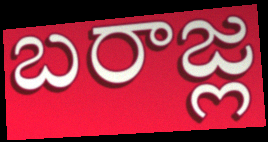
బరాజ్ల